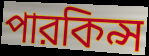
পারকিন্স